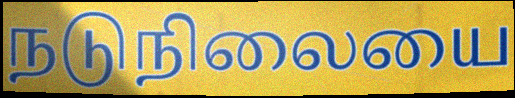
நடுநிலையை